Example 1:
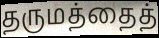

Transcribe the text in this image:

தருமத்தைத்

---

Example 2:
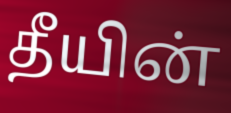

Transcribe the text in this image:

தீயின்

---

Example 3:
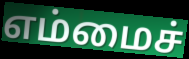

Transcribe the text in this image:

எம்மைச்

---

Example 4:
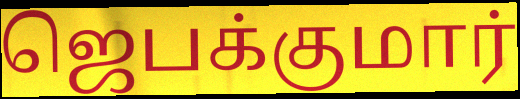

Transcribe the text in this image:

ஜெபக்குமார்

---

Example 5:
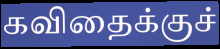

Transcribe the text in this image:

கவிதைக்குச்